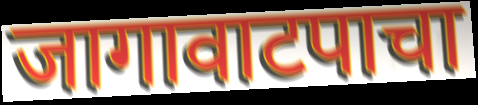
जागावाटपाचा